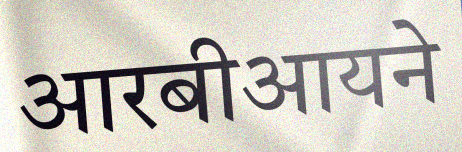
आरबीआयने